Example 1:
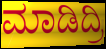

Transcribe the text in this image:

ಮಾಡಿದ್ರಿ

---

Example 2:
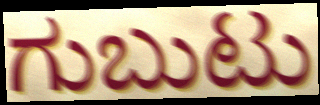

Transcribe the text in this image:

ಗುಬುಟು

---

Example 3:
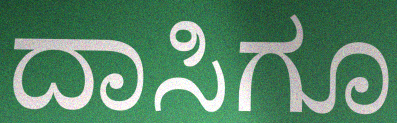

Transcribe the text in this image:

ದಾಸಿಗೂ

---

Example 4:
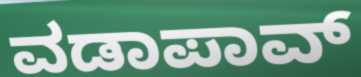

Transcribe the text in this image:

ವಡಾಪಾವ್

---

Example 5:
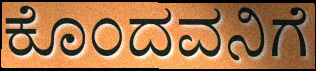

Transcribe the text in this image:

ಕೊಂದವನಿಗೆ